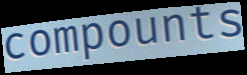
compounts